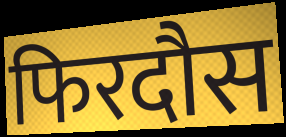
फिरदौस